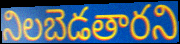
నిలబెడతారని